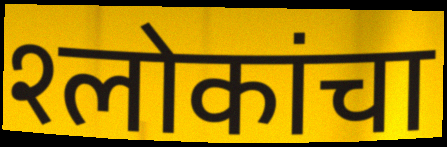
श्लोकांचा